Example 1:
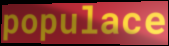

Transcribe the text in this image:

populace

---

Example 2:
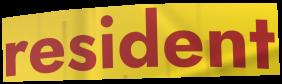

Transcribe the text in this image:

resident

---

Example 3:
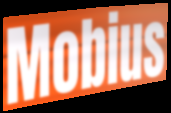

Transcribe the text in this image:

Mobius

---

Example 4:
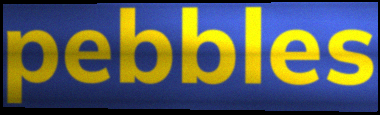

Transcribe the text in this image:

pebbles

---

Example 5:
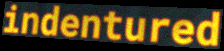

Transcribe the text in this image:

indentured